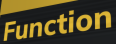
Function